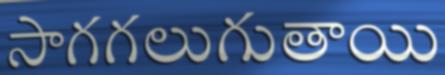
సాగగలుగుతాయి